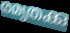
രമ്യതക്കു